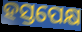
ହସ୍ତପେକ୍ଷ